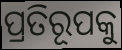
ପ୍ରତିରୂପକୁ